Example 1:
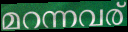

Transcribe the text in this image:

മറന്നവര്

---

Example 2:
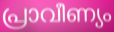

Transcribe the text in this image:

പ്രാവീണ്യം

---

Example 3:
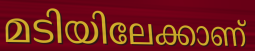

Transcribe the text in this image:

മടിയിലേക്കാണ്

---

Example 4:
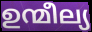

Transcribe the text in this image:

ഉന്മീല്യ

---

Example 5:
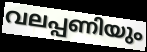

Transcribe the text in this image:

വലപ്പണിയും